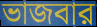
ভাজবার